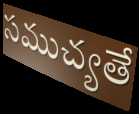
సముచ్యతే